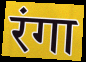
रंगा